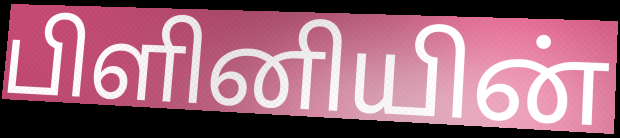
பிளினியின்